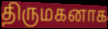
திருமகனாக